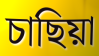
চাছিয়া